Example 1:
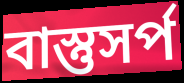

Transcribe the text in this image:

বাস্তুসর্প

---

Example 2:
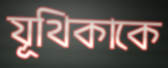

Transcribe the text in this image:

যূথিকাকে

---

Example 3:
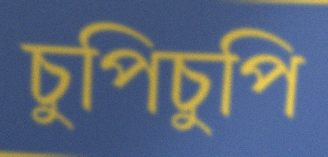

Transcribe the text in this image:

চুপিচুপি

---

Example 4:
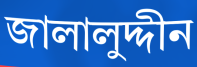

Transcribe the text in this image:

জালালুদ্দীন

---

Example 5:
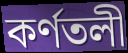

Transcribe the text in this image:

কর্ণতলী